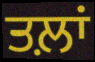
ਤਲ਼ਾਂ